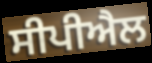
ਸੀਪੀਐਲ